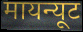
मायन्यूट